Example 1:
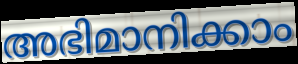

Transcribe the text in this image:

അഭിമാനിക്കാം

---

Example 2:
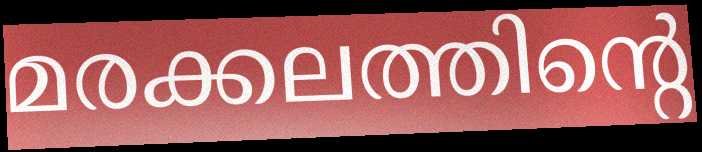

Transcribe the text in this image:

മരക്കലത്തിന്റെ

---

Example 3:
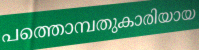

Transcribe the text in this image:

പത്തൊമ്പതുകാരിയായ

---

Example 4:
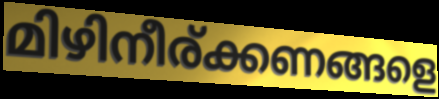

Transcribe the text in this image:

മിഴിനീര്ക്കണങ്ങളെ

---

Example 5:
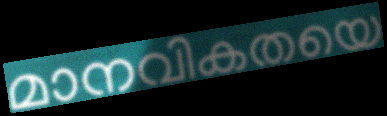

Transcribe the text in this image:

മാനവികതയെ